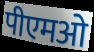
पीएमओ